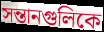
সন্তানগুলিকে